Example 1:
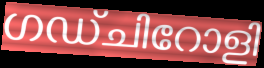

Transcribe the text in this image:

ഗഡ്ചിറോളി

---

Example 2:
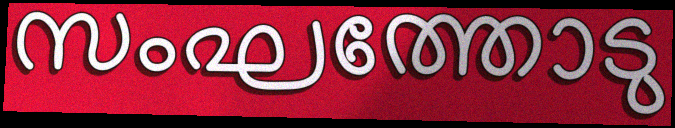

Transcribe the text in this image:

സംഘത്തോടു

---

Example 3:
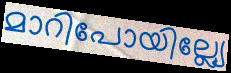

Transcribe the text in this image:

മാറിപോയില്ല്യേ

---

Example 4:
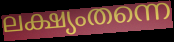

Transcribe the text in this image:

ലക്ഷ്യംതന്നെ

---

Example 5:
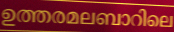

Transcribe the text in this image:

ഉത്തരമലബാറിലെ